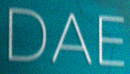
DAE